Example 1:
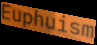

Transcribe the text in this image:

Euphuism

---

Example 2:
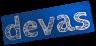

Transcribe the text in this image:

devas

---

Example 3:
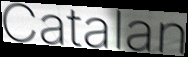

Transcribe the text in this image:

Catalan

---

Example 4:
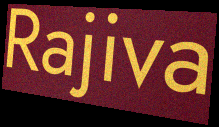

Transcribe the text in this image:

Rajiva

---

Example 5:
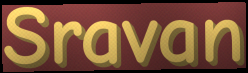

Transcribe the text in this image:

Sravan